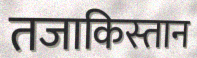
तजाकिस्‍तान